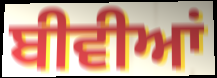
ਬੀਵੀਆਂ